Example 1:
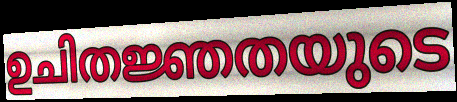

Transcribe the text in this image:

ഉചിതജ്ഞതയുടെ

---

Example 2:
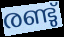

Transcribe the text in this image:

രണ്ടു്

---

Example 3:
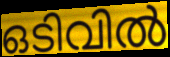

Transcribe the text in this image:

ഒടിവിൽ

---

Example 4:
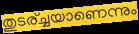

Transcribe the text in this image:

തുടര്ച്ചയാണെന്നും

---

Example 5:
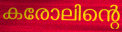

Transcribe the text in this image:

കരോലിന്റെ